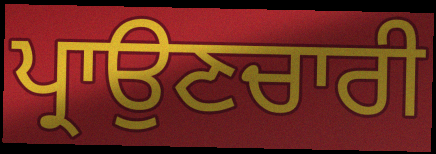
ਪ੍ਰਾਉਣਚਾਰੀ